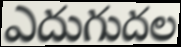
ఎదుగుదల